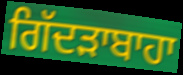
ਗਿੱਦੜਾਬਾਹਾ